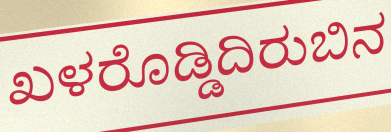
ಖಳರೊಡ್ಡಿದಿರುಬಿನ